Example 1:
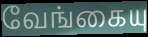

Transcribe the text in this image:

வேங்கையு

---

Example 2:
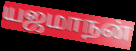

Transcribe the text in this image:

யஜமாநன்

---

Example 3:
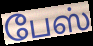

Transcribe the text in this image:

பேஸ்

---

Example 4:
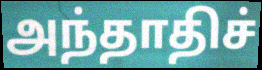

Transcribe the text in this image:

அந்தாதிச்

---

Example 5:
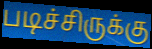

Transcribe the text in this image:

படிச்சிருக்கு